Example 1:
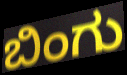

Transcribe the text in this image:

ಬಿಂಗು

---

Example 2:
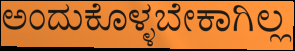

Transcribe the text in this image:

ಅಂದುಕೊಳ್ಳಬೇಕಾಗಿಲ್ಲ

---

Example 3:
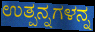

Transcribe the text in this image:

ಉತ್ಪನ್ನಗಳನ್ನ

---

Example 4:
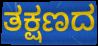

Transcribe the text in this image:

ತಕ್ಷಣದ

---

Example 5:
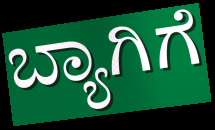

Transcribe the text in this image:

ಬ್ಯಾಗಿಗೆ